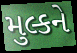
મુલ્કને